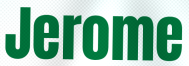
Jerome